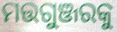
ମତ୍ତଗୁଞ୍ଜରକୁ